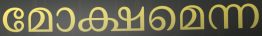
മോക്ഷമെന്ന